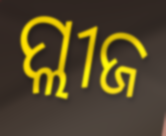
ପ୍ଲୀଜ